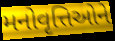
મનોવૃત્તિઓને